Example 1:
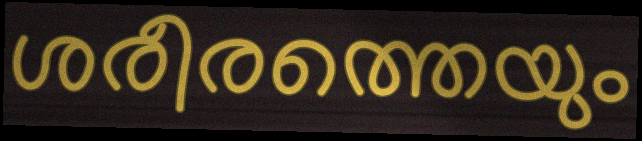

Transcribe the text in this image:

ശരീരത്തെയും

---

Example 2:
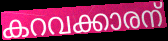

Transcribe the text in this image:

കറവക്കാരന്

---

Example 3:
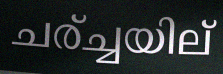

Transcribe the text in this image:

ചര്ച്ചയില്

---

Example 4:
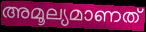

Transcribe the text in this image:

അമൂല്യമാണത്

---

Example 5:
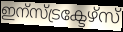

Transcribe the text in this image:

ഇന്സ്ട്രക്ടേഴ്സ്